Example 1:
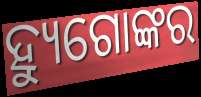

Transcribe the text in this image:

ହ୍ୟୁଗୋଙ୍କର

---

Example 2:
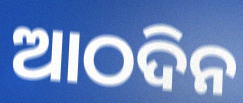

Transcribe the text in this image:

ଆଠଦିନ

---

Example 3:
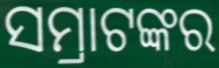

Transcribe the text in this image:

ସମ୍ରାଟଙ୍କର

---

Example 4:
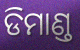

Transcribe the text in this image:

ଡିମାଣ୍ଡ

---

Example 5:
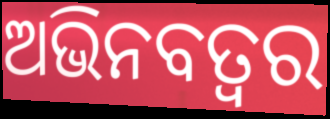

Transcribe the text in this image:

ଅଭିନବତ୍ୱର